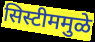
सिस्टीममुळे